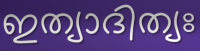
ഇത്യാദിത്യഃ